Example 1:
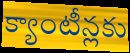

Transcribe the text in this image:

క్యాంటీన్లకు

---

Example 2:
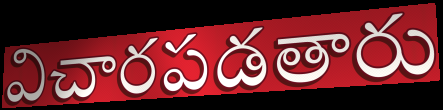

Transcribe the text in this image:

విచారపడతారు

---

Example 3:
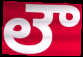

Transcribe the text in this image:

లౌ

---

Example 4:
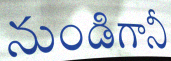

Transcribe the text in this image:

నుండిగానీ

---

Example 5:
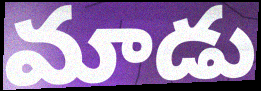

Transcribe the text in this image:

మాడు